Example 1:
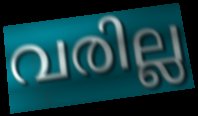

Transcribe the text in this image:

വരില്ല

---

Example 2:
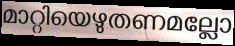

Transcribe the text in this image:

മാറ്റിയെഴുതണമല്ലോ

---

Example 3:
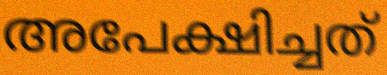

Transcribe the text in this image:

അപേക്ഷിച്ചത്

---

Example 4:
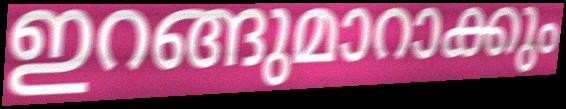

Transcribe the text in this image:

ഇറങ്ങുമാറാക്കും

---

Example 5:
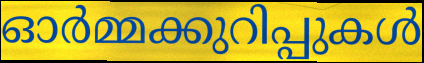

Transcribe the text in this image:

ഓർമ്മക്കുറിപ്പുകൾ